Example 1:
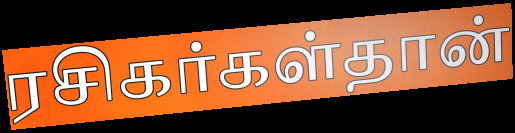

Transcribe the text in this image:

ரசிகர்கள்தான்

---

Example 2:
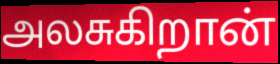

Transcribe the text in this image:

அலசுகிறான்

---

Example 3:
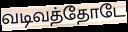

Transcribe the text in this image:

வடிவத்தோடே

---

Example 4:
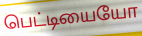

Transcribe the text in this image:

பெட்டியையோ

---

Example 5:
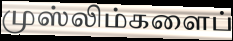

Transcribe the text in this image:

முஸ்லிம்களைப்